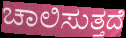
ಚಾಲಿಸುತ್ತದೆ